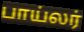
பாய்லர்